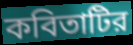
কবিতাটির